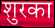
शुरका